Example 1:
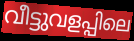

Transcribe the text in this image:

വീട്ടുവളപ്പിലെ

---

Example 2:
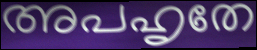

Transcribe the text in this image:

അപഹൃതേ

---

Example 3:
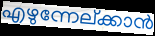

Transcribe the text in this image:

എഴുന്നേല്ക്കാൻ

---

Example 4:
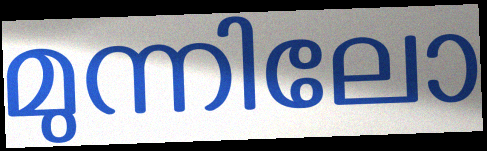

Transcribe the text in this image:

മുന്നിലോ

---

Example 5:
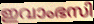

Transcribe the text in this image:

ഇവാംഭസി